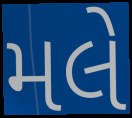
મલે